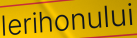
Ierihonului